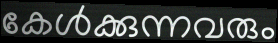
കേൾക്കുന്നവരും